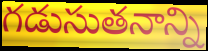
గడుసుతనాన్ని